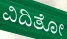
ವಿದಿತೋ